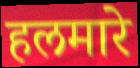
हलमारे